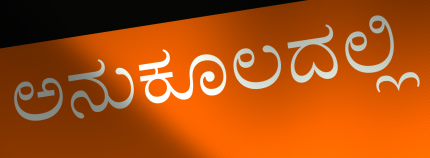
ಅನುಕೂಲದಲ್ಲಿ